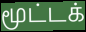
மூட்டக்